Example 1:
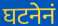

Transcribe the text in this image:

घटनेनं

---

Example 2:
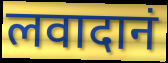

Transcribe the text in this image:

लवादानं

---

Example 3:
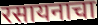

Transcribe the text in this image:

रसायनाचा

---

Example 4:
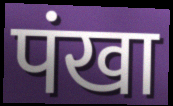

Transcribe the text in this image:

पंखा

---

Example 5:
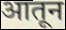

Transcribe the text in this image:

आतून